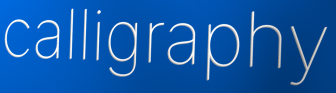
calligraphy